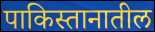
पाकिस्तानातील